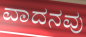
ವಾದನವು